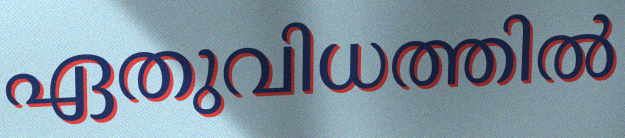
ഏതുവിധത്തിൽ